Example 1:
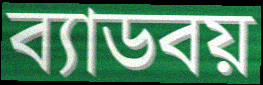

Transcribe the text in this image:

ব্যাডবয়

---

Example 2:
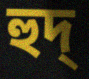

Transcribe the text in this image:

হুদ্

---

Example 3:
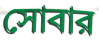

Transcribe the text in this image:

সোবার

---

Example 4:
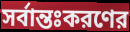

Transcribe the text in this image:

সর্বান্তঃকরণের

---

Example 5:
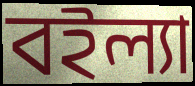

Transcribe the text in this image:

বইল্যা